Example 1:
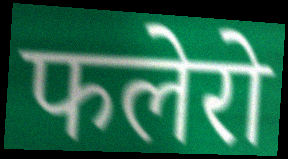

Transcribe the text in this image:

फलेरो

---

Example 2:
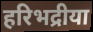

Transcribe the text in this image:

हरिभद्रीया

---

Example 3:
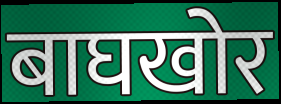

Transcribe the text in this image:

बाघखोर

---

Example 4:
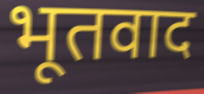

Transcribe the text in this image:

भूतवाद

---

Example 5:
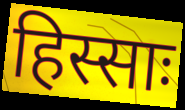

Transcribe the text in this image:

हिस्साः